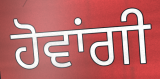
ਹੋਵਾਂਗੀ